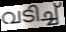
വടിച്ച്